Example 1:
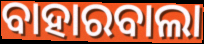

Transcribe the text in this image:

ବାହାରବାଲା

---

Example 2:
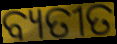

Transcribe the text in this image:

ବ୍ଯତୀତ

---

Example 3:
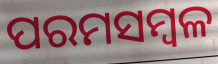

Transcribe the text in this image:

ପରମସମ୍ବଳ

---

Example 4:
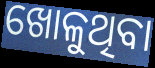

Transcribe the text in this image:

ଖୋଳୁଥିବା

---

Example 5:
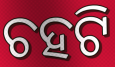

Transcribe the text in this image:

ଚହଟି